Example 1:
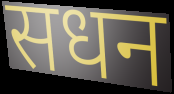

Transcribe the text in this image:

सधन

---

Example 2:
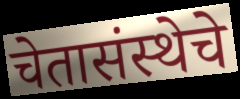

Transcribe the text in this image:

चेतासंस्थेचे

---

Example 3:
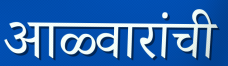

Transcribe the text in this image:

आळ्वारांची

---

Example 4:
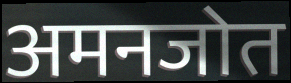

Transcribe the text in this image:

अमनजोत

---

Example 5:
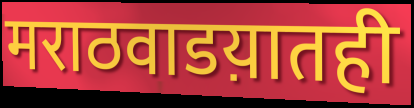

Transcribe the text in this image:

मराठवाडय़ातही